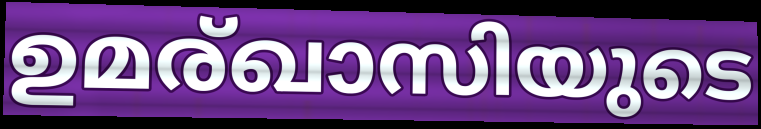
ഉമര്ഖാസിയുടെ